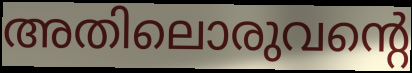
അതിലൊരുവന്റെ